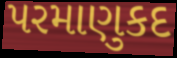
પરમાણુકદ